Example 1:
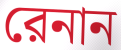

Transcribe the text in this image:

রেনান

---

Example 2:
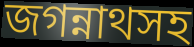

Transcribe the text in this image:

জগন্নাথসহ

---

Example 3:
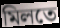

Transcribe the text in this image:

মিলতে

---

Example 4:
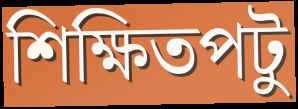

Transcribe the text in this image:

শিক্ষিতপটু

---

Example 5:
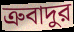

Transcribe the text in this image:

ত্রুবাদুর